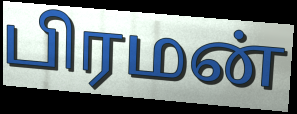
பிரமன்